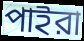
পাইরা